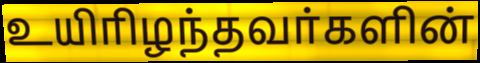
உயிரிழந்தவர்களின்